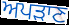
ਅਪੜਾਣ